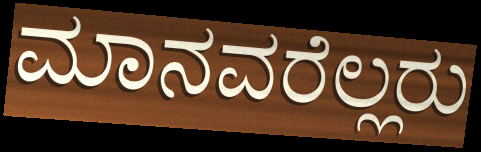
ಮಾನವರೆಲ್ಲರು